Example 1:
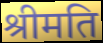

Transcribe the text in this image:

श्रीमति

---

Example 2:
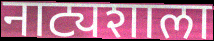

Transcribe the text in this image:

नाट्यशाला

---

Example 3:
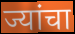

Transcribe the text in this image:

ज्यांचा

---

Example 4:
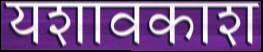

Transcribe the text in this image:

यशावकाश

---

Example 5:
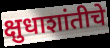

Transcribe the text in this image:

क्षुधाशांतीचे